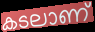
കടലാണ്